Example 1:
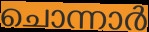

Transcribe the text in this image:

ചൊന്നാർ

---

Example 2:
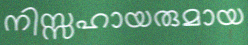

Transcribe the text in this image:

നിസ്സഹായരുമായ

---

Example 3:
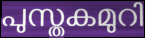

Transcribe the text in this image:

പുസ്തകമുറി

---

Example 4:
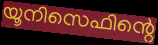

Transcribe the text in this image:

യൂനിസെഫിന്റെ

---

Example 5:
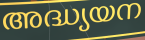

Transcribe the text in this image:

അദ്ധ്യയന